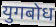
युगबोध